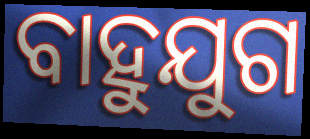
ବାହୁଯୁଗ